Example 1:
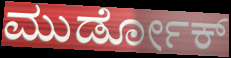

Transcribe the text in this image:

ಮುರ್ಡೋಕ್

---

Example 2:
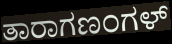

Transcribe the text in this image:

ತಾರಾಗಣಂಗಳ್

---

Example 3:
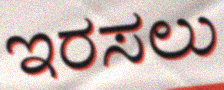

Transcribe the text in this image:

ಇರಸಲು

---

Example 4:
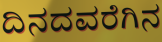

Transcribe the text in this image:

ದಿನದವರೆಗಿನ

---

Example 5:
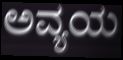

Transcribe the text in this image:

ಅವ್ಯಯ